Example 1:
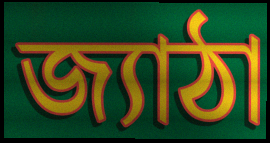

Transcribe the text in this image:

জ্যাঠা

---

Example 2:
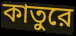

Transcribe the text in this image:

কাতুরে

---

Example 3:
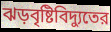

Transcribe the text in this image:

ঝড়বৃষ্টিবিদ্যুতের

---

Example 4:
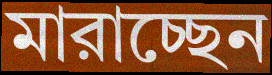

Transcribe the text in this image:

মারাচ্ছেন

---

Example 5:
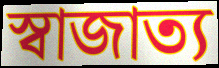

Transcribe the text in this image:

স্বাজাত্য